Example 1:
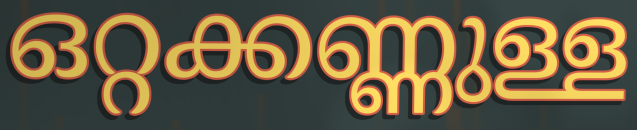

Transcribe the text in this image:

ഒറ്റക്കണ്ണുള്ള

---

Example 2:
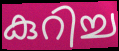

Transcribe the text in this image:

കുറിച്ച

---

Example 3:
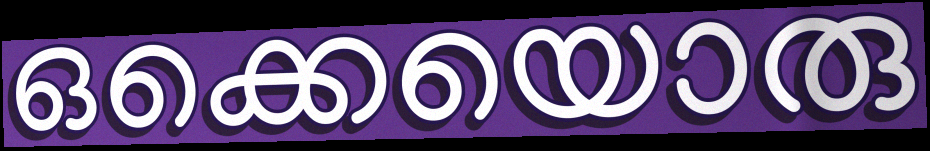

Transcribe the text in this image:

ഒക്കെയൊരു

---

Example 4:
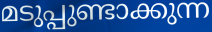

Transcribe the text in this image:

മടുപ്പുണ്ടാക്കുന്ന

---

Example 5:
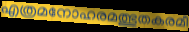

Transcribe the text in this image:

എത്രമനോഹരമത്ഭുതകരമീ